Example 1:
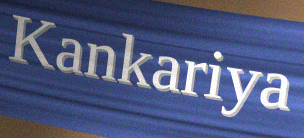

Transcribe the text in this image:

Kankariya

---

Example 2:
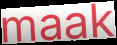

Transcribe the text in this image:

maak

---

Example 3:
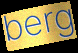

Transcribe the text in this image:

berg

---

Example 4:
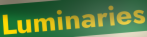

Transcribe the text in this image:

Luminaries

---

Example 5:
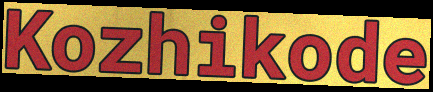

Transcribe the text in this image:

Kozhikode